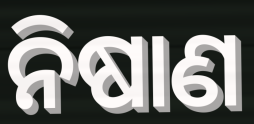
ନିଷାଣ